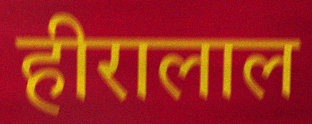
हीरालाल